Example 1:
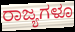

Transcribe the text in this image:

ರಾಜ್ಯಗಳೂ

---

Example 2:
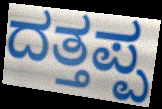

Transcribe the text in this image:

ದತ್ತಪ್ಪ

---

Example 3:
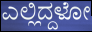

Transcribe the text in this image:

ಎಲ್ಲಿದ್ದಳೋ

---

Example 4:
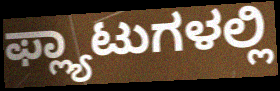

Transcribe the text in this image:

ಫ್ಲ್ಯಾಟುಗಳಲ್ಲಿ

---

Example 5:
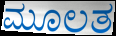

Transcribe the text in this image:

ಮೂಲತ